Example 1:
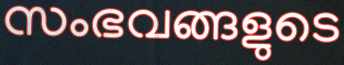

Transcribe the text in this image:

സംഭവങ്ങളുടെ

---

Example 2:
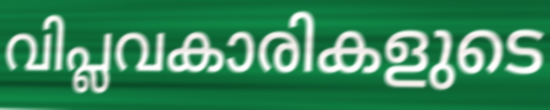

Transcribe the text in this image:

വിപ്ലവകാരികളുടെ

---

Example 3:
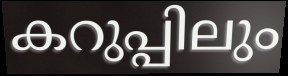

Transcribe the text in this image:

കറുപ്പിലും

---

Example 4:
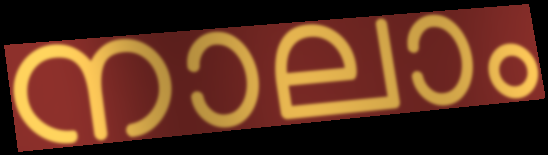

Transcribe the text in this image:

നാലാം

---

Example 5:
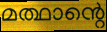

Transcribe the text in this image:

മത്ഥാന്റെ